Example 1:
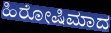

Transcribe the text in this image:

ಹಿರೋಷಿಮಾದ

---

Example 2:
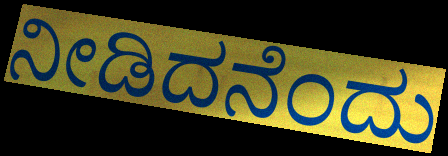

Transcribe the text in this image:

ನೀಡಿದನೆಂದು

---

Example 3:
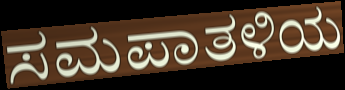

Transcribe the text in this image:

ಸಮಪಾತಳಿಯ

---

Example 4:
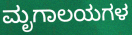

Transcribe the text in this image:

ಮೃಗಾಲಯಗಳ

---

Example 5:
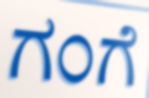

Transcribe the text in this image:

ಗಂಗೆ